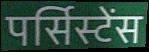
पर्सिस्टेंस